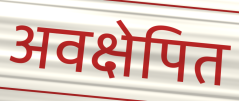
अवक्षेपित